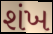
શંખ